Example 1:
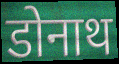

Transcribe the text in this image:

डोनाथ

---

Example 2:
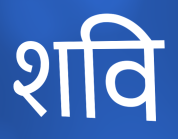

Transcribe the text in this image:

शवि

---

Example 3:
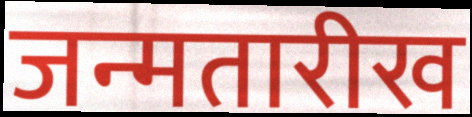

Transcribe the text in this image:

जन्मतारीख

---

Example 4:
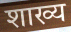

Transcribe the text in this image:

शाख्य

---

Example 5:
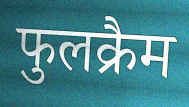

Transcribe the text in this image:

फुलक्रैम